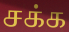
சக்க